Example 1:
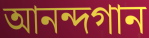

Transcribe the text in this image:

আনন্দগান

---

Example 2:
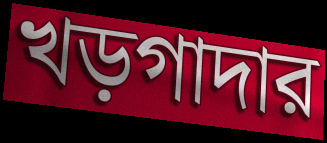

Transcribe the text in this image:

খড়গাদার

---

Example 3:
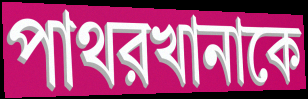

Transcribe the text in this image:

পাথরখানাকে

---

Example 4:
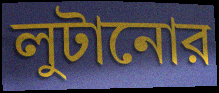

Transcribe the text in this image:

লুটানোর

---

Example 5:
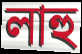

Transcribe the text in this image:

লাহু